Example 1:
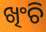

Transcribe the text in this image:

ଖିଂଚି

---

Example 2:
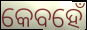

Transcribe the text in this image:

କେବହେଁ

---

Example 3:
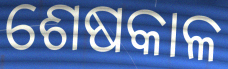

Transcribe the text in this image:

ଶେଷକାଳ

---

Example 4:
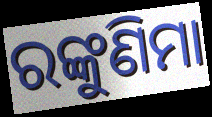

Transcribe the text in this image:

ରଙ୍କୁଣିମା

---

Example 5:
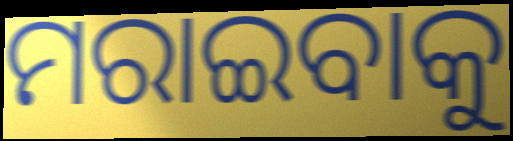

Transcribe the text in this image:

ମରାଇବାକୁ